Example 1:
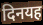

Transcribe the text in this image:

दिनयह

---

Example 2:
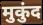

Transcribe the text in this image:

मुकुंद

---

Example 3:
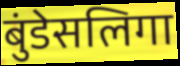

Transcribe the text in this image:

बुंडेसलिगा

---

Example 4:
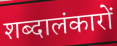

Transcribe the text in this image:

शब्दालंकारों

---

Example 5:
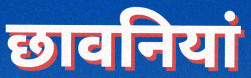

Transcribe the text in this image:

छावनियां